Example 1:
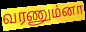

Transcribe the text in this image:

வரணும்னா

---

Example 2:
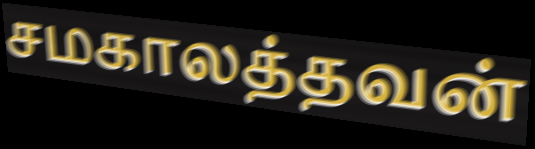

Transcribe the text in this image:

சமகாலத்தவன்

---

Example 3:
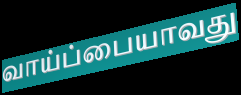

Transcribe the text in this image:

வாய்ப்பையாவது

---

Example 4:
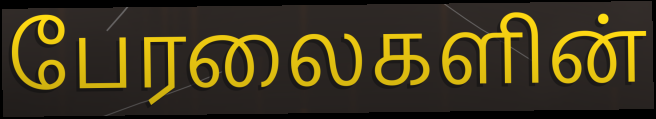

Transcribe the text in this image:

பேரலைகளின்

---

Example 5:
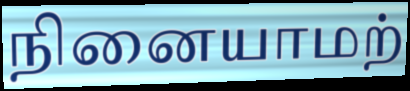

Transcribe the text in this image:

நினையாமற்